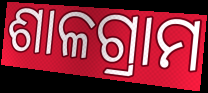
ଶାଳଗ୍ରାମ